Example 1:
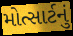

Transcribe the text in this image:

મોત્સાર્ટનું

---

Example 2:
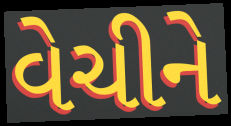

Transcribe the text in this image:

વેચીને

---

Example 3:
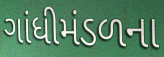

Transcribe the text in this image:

ગાંધીમંડળના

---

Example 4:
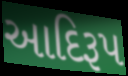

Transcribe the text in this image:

આદિરૂપ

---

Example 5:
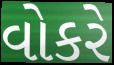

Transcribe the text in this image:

વોકરે